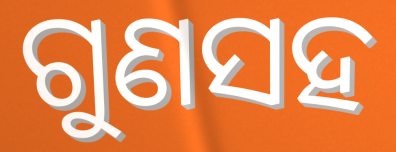
ଗୁଣସହ